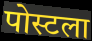
पोस्टला